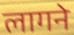
लागने